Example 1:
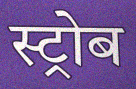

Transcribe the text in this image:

स्ट्रोब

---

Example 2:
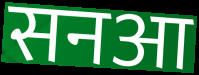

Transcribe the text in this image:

सनआ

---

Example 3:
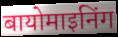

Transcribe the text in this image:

बायोमाइनिंग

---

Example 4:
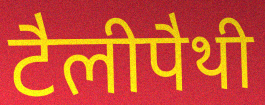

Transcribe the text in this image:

टैलीपैथी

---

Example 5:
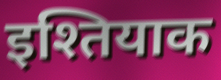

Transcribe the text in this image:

इश्तियाक